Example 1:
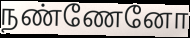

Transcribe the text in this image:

நண்ணேனோ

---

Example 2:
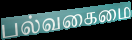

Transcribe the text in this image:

பல்வகைமை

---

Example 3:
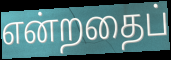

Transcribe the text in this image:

என்றதைப்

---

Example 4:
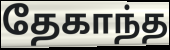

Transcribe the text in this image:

தேகாந்த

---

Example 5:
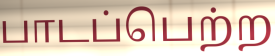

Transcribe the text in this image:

பாடப்பெற்ற